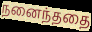
நனைந்ததை